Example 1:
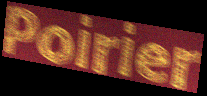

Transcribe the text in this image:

Poirier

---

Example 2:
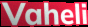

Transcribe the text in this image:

Vaheli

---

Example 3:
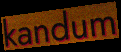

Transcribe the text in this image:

kandum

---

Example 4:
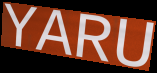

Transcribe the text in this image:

YARU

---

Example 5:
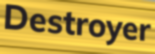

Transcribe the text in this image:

Destroyer